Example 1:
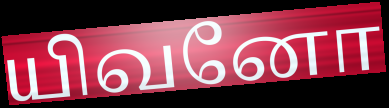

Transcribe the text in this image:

யிவனோ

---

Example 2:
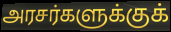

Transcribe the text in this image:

அரசர்களுக்குக்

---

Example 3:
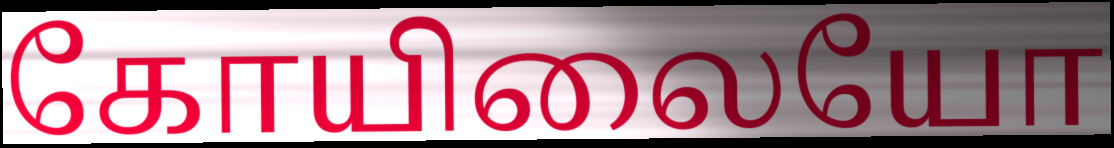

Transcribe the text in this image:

கோயிலையோ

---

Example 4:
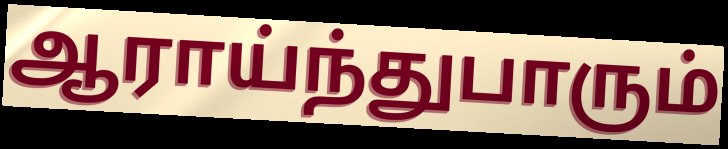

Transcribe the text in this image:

ஆராய்ந்துபாரும்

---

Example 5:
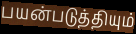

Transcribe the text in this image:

பயன்படுத்தியும்